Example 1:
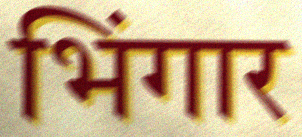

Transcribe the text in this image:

भिंगार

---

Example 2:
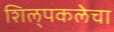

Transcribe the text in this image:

शिल्पकलेचा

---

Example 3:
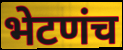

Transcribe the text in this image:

भेटणंच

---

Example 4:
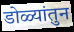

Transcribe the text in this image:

डोळ्यांतुन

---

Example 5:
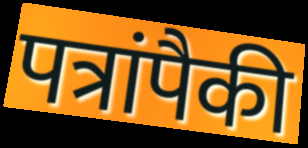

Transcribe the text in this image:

पत्रांपैकी